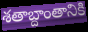
శతాబ్దాంతానికి